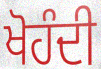
ਖੋਹੰਦੀ